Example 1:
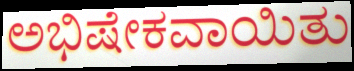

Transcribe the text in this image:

ಅಭಿಷೇಕವಾಯಿತು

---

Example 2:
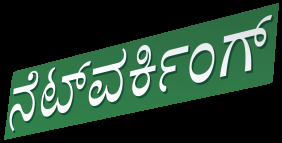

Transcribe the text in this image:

ನೆಟ್‌ವರ್ಕಿಂಗ್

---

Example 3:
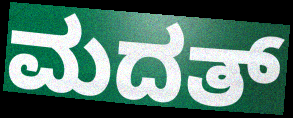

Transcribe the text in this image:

ಮದತ್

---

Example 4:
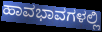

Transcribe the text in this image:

ಹಾವಭಾವಗಳಲ್ಲಿ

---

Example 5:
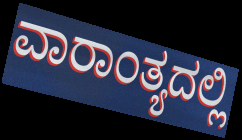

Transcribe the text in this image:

ವಾರಾಂತ್ಯದಲ್ಲಿ